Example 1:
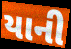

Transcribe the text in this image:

યાની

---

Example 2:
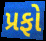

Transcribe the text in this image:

પ્રફો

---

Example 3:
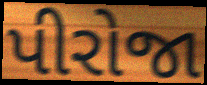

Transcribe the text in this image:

પીરોજા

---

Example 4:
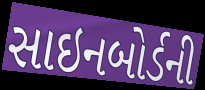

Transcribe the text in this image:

સાઇનબોર્ડની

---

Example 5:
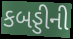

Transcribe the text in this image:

કબડ્ડીની